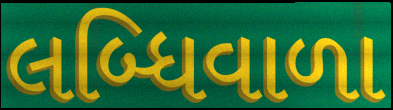
લબ્ધિવાળા